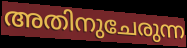
അതിനുചേരുന്ന